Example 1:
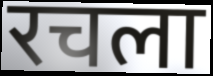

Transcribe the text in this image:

रचला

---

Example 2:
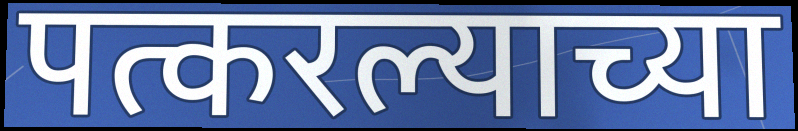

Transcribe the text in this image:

पत्करल्याच्या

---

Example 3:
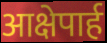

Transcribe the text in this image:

आक्षेपार्ह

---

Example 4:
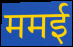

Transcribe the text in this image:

ममई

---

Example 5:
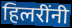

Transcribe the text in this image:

हिलरींनी